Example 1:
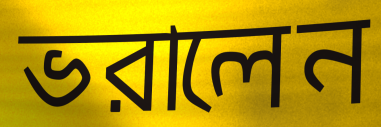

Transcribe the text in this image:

ভরালেন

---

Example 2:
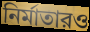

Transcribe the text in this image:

নির্মাতারও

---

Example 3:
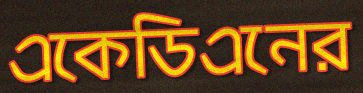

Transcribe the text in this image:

একেডিএনের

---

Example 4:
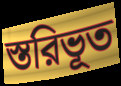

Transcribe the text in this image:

স্তরিভূত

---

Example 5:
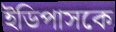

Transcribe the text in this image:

ইডিপাসকে